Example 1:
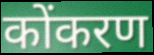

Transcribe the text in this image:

कोंकरण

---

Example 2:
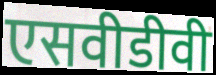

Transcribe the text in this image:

एसवीडीवी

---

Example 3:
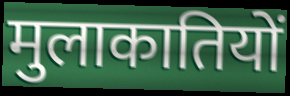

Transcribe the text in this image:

मुलाकातियों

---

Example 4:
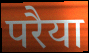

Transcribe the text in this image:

परैया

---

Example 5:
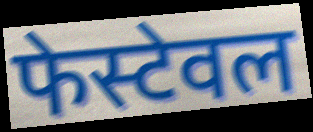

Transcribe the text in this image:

फेस्टेवल